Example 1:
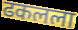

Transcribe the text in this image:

ढकलला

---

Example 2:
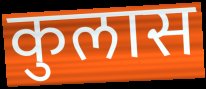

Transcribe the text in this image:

कुलास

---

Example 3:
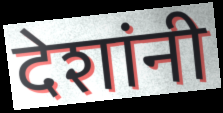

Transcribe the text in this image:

देशांनी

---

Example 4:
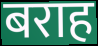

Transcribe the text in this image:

बराह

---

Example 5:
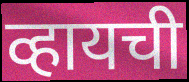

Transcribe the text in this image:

व्हायची